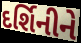
દર્શિનીને